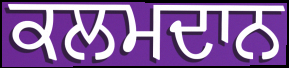
ਕਲਮਦਾਨ